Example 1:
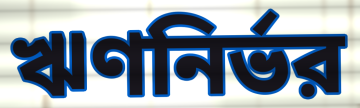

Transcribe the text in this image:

ঋণনির্ভর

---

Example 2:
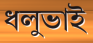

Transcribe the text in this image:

ধলুভাই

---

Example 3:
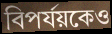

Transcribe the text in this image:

বিপর্যয়কেও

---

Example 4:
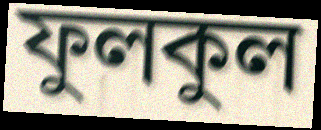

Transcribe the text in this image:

ফুলকুল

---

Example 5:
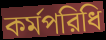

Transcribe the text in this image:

কর্মপরিধি